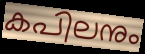
കപിലനും